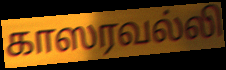
காஸரவல்லி